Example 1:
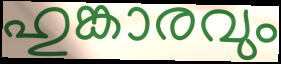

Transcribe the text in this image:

ഹുങ്കാരവും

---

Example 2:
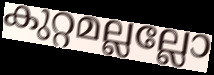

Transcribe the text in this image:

കുറ്റമല്ലല്ലോ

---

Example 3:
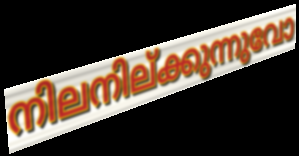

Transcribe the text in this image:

നിലനില്ക്കുന്നുവോ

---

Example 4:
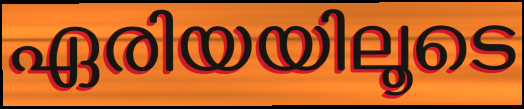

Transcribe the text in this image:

ഏരിയയിലൂടെ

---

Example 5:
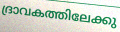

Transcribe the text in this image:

ദ്രാവകത്തിലേക്കു